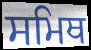
ਸਮਿਥ